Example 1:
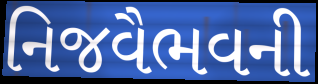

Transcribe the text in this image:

નિજવૈભવની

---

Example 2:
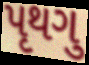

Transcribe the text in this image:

પૃથગુ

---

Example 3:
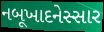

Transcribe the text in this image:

નબૂખાદનેસ્સાર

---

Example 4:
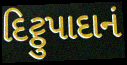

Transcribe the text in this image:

દિટ્ઠુપાદાનં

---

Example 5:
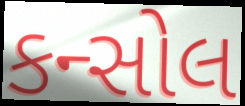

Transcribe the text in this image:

કન્સોલ